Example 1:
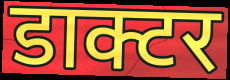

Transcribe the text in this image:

डाक्टर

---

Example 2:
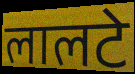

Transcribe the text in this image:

लालटे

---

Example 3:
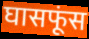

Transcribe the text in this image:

घासफूंस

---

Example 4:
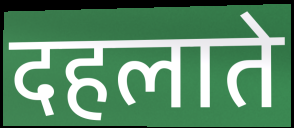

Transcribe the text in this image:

दहलाते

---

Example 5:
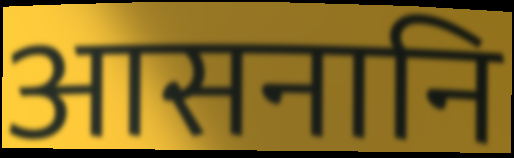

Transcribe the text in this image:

आसनानि